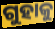
ଗୁହାକୁ